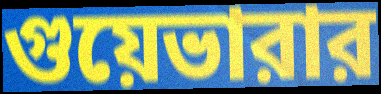
গুয়েভারার